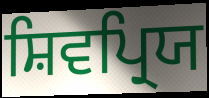
ਸ਼ਿਵਪ੍ਰਿਯ